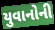
યુવાનોની